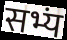
सभ्यं